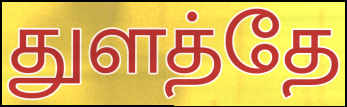
துளத்தே